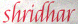
shridhar